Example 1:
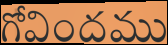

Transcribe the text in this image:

గోవిందము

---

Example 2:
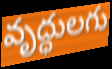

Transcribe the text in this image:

వృద్ధులగు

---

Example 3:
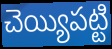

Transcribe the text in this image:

చెయ్యిపట్టి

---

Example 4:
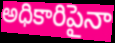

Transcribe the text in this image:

అధికారిపైనా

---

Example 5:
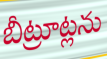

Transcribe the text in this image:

బీట్రూట్లను